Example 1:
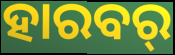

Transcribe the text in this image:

ହାରବର୍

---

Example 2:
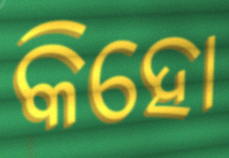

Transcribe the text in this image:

କିହୋ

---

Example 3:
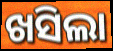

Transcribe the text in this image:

ଖସିଲା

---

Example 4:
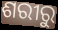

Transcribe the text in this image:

ଶରୀରୁ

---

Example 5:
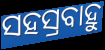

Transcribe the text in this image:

ସହସ୍ରବାହୁ